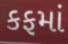
કફમાં